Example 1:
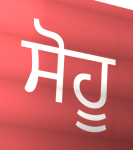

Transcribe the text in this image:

ਸੋਹੂ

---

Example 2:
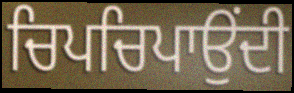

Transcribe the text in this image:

ਚਿਪਚਿਪਾਉਂਦੀ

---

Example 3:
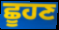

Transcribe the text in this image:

ਛੂਹਣ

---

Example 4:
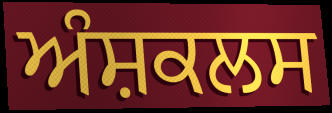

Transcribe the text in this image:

ਅੰਸ਼ਕਲਸ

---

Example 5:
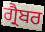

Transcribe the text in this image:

ਗ੍ਰੈਬਰ